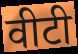
वीटी